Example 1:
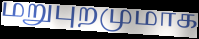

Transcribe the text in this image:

மறுபுறமுமாக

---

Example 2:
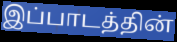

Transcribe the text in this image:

இப்பாடத்தின்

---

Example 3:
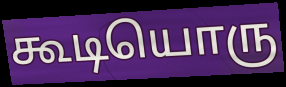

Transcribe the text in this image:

கூடியொரு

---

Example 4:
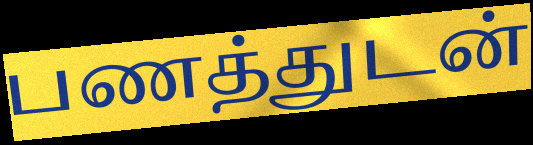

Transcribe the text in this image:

பணத்துடன்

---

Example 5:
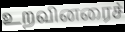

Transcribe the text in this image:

உறவினரைச்